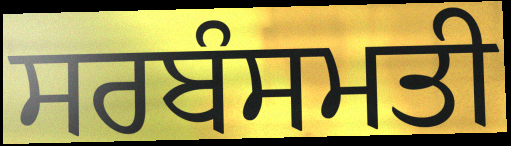
ਸਰਬੰਸਮਤੀ